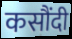
कसौंदी